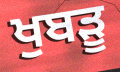
ਖੁਬੜੂ